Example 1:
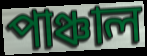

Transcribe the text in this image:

পাঞ্চাল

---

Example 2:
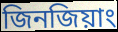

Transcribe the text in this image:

জিনজিয়াং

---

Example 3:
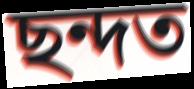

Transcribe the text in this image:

ছন্দত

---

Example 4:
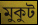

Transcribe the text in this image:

মুকুট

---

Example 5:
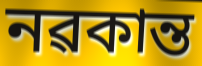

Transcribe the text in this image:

নৱকান্ত